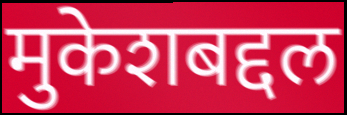
मुकेशबद्दल